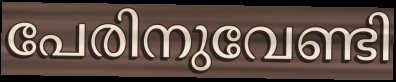
പേരിനുവേണ്ടി